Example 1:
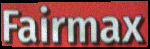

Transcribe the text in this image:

Fairmax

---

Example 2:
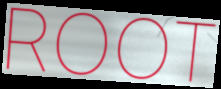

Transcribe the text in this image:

ROOT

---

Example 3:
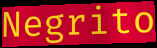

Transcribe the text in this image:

Negrito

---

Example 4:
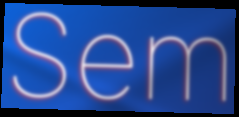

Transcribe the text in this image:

Sem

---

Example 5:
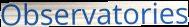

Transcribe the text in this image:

Observatories